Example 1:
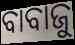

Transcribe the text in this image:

ବାବାଜୁ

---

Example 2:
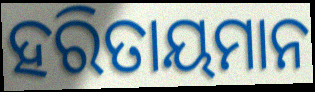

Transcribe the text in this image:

ହରିତାୟମାନ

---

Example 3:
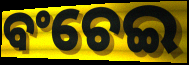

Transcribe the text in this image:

ବଂଚେଇ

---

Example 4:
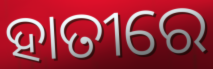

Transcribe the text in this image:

ହାତୀରେ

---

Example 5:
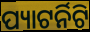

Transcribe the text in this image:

ପ୍ୟାଟର୍ନିଟି